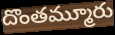
దొంతమ్మూరు